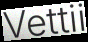
Vettii